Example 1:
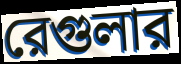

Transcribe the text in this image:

রেগুলার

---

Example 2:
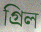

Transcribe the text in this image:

গ্রিল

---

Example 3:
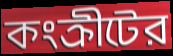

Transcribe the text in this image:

কংক্রীটের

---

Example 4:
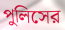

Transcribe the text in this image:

পুলিসের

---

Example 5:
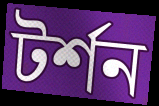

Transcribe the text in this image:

টর্শন